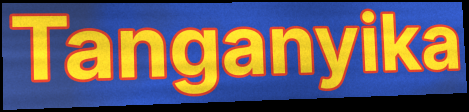
Tanganyika